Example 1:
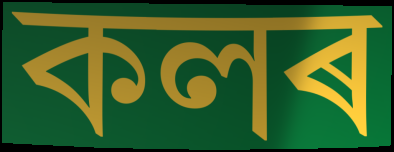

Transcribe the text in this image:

কলৰ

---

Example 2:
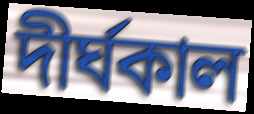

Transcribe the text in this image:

দীৰ্ঘকাল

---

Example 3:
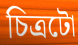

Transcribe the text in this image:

চিত্ৰটো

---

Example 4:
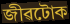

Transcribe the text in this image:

জীৱটোক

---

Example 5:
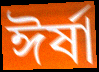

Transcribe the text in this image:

ঈৰ্ষা